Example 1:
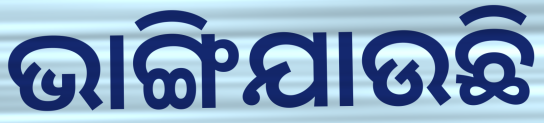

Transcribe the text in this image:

ଭାଙ୍ଗିଯାଉଛି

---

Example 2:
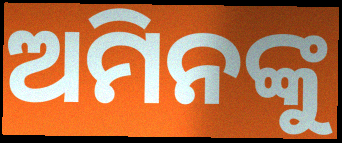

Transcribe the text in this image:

ଅମିନଙ୍କୁ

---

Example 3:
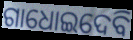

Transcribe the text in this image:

ଗାଧୋଇଦେବି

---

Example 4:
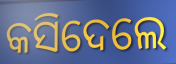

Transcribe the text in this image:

କସିଦେଲେ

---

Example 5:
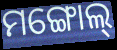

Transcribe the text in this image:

ମଙ୍ଗୋଲ୍